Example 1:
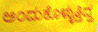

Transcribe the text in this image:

ಅಂದುಕೊಳ್ಳುತ್ತಿದ್ದ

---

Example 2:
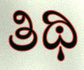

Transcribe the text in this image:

ತಿಥಿ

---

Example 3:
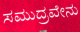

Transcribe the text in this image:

ಸಮುದ್ರವೇನು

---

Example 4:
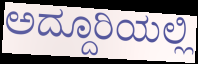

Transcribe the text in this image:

ಅದ್ದೂರಿಯಲ್ಲಿ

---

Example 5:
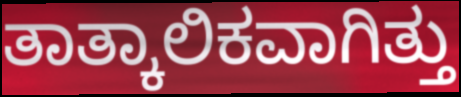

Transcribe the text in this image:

ತಾತ್ಕಾಲಿಕವಾಗಿತ್ತು